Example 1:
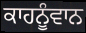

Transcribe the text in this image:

ਕਾਹਨੂੰਵਾਨ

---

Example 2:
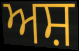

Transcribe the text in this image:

ਅਸ਼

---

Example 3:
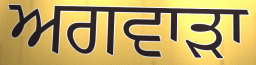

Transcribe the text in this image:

ਅਗਵਾੜਾ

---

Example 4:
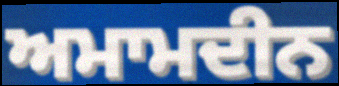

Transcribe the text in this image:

ਅਮਾਮਦੀਨ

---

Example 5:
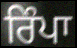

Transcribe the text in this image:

ਰਿੰਪਾ